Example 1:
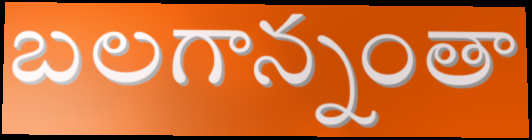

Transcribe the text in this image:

బలగాన్నంతా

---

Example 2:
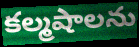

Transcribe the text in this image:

కల్మషాలను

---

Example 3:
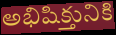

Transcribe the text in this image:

అభిషిక్తునికి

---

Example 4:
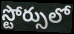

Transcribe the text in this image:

స్టోర్సులో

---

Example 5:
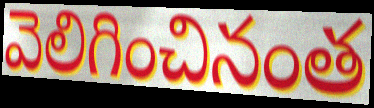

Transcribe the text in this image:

వెలిగించినంత